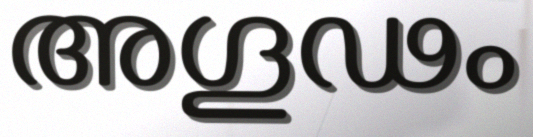
അഗൂഢം